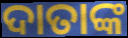
ଦାତାଙ୍କ